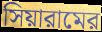
সিয়ারামের